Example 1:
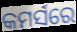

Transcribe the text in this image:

କମର୍ସରେ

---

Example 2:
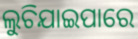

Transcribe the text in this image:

ଲୁଚିଯାଇପାରେ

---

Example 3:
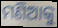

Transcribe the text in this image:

ମଣିଆକୁ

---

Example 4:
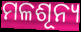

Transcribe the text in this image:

ମଳଶୂନ୍ୟ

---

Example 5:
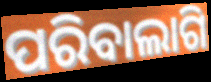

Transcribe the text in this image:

ପରିବାଲାଗି